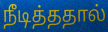
நீடித்ததால்